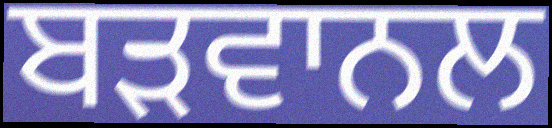
ਬੜਵਾਨਲ